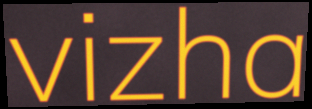
vizha